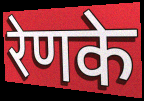
रेणके